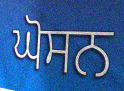
ਘੋਸਨ